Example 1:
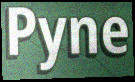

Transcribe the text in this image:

Pyne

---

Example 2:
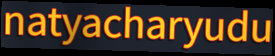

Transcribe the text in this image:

natyacharyudu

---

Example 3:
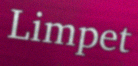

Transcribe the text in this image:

Limpet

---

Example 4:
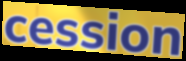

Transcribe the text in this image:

cession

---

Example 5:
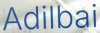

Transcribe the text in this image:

Adilbai